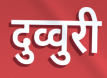
दुव्वुरी